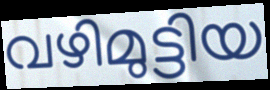
വഴിമുട്ടിയ